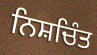
ਨਿਸ਼ਚਿੰਤ